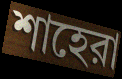
শাহেরা